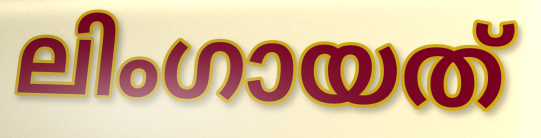
ലിംഗായത്